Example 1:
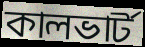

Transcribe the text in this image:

কালভার্ট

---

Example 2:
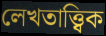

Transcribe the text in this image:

লেখতাত্ত্বিক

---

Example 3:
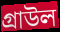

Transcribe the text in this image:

গ্রাউল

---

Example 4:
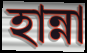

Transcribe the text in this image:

হান্না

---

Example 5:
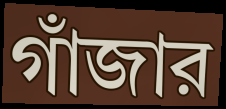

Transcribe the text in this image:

গাঁজার